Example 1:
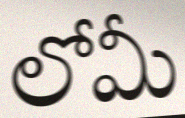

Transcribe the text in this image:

లోమీ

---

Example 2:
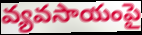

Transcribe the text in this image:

వ్యవసాయంపై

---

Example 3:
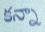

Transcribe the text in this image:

కన్నా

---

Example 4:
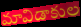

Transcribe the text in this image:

మావిడాకుల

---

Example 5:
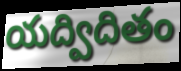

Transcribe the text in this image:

యద్విదితం